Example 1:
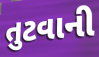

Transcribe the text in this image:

તુટવાની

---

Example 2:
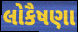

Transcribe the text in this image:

લોકૈષણા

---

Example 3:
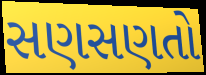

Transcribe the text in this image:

સણસણતો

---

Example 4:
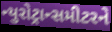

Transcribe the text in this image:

ન્યુરોટ્રાન્સમીટરને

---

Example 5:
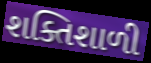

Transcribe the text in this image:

શક્તિશાળી